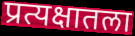
प्रत्यक्षातला